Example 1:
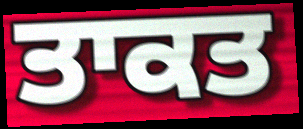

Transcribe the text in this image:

ਤਾਕਤ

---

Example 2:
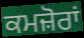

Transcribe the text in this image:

ਕਮਜ਼ੋਰਾਂ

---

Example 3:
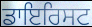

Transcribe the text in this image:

ਡਾਇਰਿਸਟ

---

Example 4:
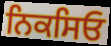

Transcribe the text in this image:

ਨਿਕਸਿਓ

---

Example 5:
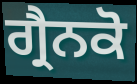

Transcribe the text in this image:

ਗ੍ਰੈਨਕੋ